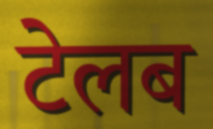
टेलब